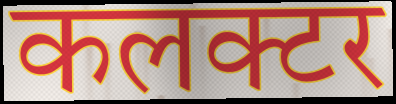
कलक्टर